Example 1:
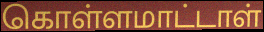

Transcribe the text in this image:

கொள்ளமாட்டாள்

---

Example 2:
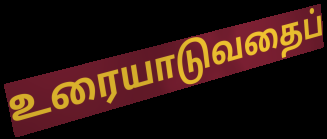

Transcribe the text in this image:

உரையாடுவதைப்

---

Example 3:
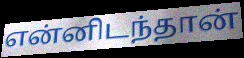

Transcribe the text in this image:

என்னிடந்தான்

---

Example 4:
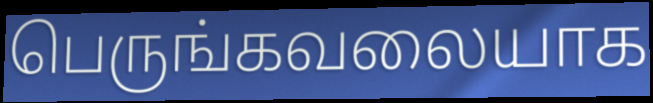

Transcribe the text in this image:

பெருங்கவலையாக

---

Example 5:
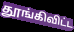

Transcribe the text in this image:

தூங்கிவிட்ட